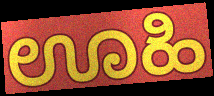
ಊಹಿ